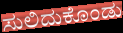
ಸುಲಿದುಕೊಂಡು